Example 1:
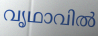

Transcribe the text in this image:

വൃഥാവിൽ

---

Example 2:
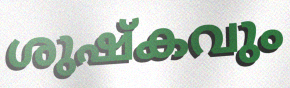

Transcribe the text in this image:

ശുഷ്കവും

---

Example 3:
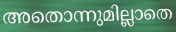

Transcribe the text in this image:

അതൊന്നുമില്ലാതെ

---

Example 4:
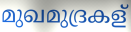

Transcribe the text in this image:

മുഖമുദ്രകള്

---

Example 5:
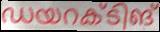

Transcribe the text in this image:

ഡയറക്ടിങ്